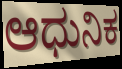
ಆಧುನಿಕ